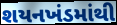
શયનખંડમાંથી